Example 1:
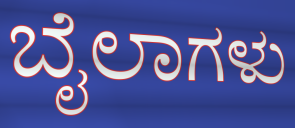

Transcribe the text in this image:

ಬೈಲಾಗಳು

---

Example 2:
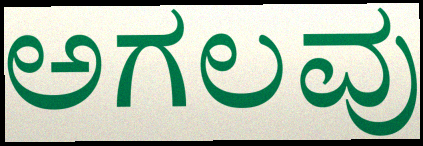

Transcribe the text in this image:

ಅಗಲವು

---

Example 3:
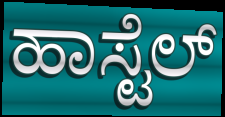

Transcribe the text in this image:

ಹಾಸ್ಟೆಲ್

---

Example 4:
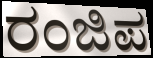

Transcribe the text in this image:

ರಂಜಿಪ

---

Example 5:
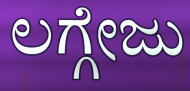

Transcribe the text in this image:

ಲಗ್ಗೇಜು